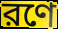
রণে